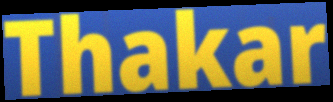
Thakar